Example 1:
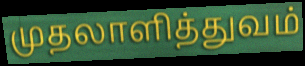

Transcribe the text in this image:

முதலாளித்துவம்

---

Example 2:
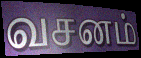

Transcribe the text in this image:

வசனம்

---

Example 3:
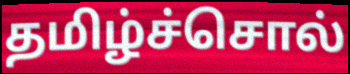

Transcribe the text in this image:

தமிழ்ச்சொல்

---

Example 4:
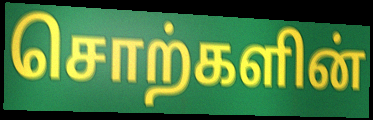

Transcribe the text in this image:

சொற்களின்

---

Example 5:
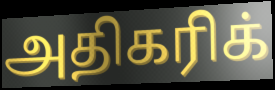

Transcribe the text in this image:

அதிகரிக்